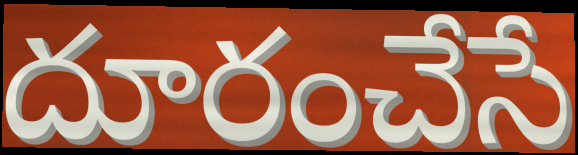
దూరంచేసే